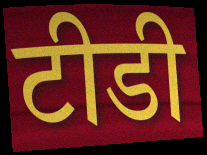
टीडी